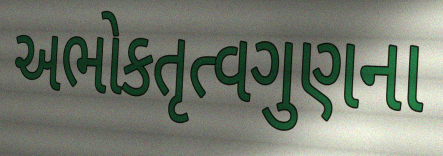
અભોકતૃત્વગુણના